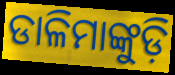
ଡାଳିମାଙ୍କୁଡ଼ି